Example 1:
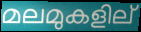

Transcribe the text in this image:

മലമുകളില്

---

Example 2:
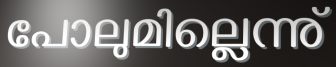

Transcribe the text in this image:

പോലുമില്ലെന്നു്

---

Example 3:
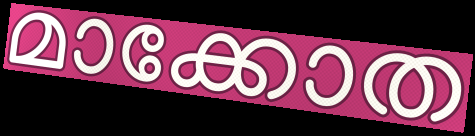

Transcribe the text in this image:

മാക്കോത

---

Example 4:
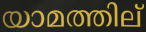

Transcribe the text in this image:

യാമത്തില്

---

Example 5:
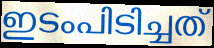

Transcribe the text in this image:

ഇടംപിടിച്ചത്